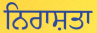
ਨਿਰਾਸ਼ਤਾ